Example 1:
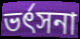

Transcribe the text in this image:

ভর্ৎসনা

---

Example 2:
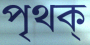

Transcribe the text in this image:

পৃথক্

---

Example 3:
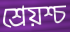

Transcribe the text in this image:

শ্রেয়শ্চ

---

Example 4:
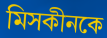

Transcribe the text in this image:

মিসকীনকে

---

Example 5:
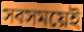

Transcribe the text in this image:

সবসময়েই